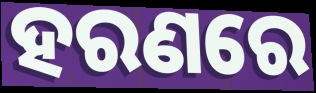
ହରଣରେ